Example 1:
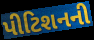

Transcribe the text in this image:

પીટિશનની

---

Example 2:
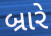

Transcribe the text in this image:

બ્રારે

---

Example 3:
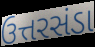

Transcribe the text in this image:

ઉત્તરસંડા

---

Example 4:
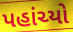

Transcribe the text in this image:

પહાંચ્યો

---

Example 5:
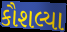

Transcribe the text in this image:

કૌશલ્યા